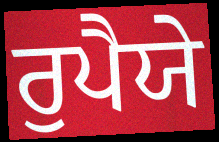
ਰੁਪੈਯੇ